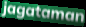
jagataman